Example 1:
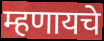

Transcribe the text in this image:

म्हणायचे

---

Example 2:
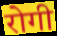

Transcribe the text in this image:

रोगी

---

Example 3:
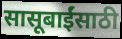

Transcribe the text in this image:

सासूबाईंसाठी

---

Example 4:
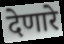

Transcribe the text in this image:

देणारे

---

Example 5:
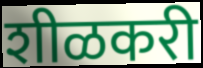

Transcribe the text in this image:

शीळकरी